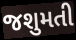
જશુમતી